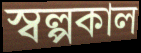
স্বল্পকাল